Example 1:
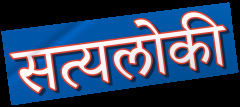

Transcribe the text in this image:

सत्यलोकी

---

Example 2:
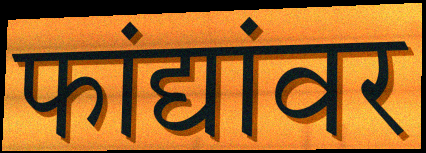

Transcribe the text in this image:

फांद्यांवर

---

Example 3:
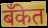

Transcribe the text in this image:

बँकेत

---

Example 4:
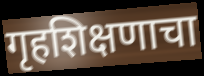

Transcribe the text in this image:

गृहशिक्षणाचा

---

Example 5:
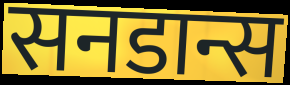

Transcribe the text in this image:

सनडान्स